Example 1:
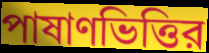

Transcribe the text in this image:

পাষাণভিত্তির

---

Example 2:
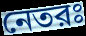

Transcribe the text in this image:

নেতরঃ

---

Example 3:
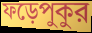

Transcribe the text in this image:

ফড়েপুকুর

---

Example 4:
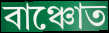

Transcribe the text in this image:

বাঞ্চোত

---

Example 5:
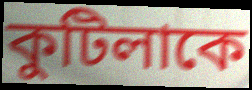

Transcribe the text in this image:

কুটিলাকে